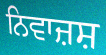
ਨਿਵਾਜ਼ਸ਼